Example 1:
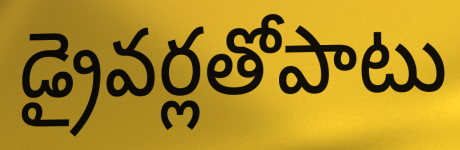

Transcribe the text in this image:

డ్రైవర్లతోపాటు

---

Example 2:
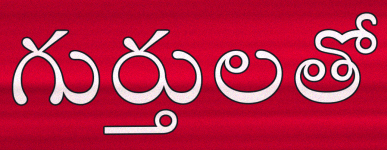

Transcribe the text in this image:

గుర్తులతో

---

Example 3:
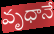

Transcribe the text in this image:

వృధానే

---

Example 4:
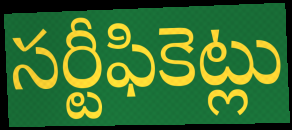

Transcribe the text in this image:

సర్టీఫికెట్లు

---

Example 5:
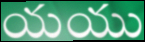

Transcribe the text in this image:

యయు